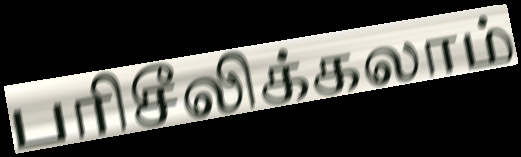
பரிசீலிக்கலாம்